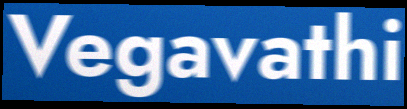
Vegavathi